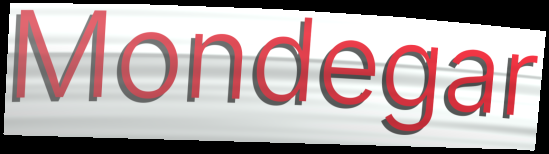
Mondegar